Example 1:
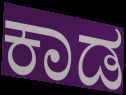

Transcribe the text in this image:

ಕಾಡ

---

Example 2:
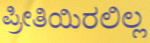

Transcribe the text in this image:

ಪ್ರೀತಿಯಿರಲಿಲ್ಲ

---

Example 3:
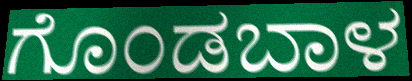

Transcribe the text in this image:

ಗೊಂಡಬಾಳ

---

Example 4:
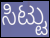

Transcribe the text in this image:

ಸಿಟ್ಟು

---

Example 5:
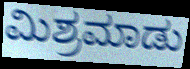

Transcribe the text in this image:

ಮಿಶ್ರಮಾಡು